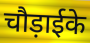
चौड़ाईके